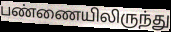
பண்ணையிலிருந்து